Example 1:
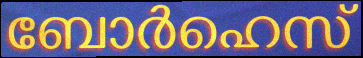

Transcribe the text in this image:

ബോർഹെസ്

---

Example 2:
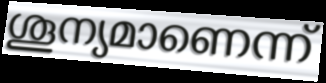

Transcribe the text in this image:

ശൂന്യമാണെന്ന്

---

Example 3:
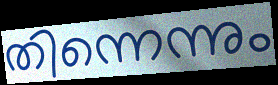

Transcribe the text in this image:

തിന്നെന്നും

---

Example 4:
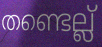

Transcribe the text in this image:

തണ്ടെല്ല്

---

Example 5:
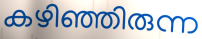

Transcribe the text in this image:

കഴിഞ്ഞിരുന്ന